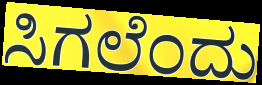
ಸಿಗಲೆಂದು